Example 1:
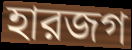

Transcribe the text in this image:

হারজগ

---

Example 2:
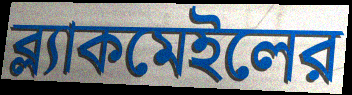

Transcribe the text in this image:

ব্ল্যাকমেইলের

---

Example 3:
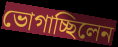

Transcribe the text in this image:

ভোগাচ্ছিলেন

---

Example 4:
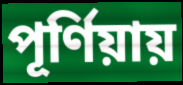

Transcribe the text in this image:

পূর্ণিয়ায়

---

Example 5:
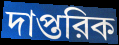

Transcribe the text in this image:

দাপ্তরিক